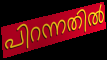
പിറന്നതിൽ